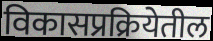
विकासप्रक्रियेतील